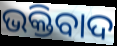
ଭକ୍ତିବାଦ